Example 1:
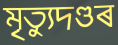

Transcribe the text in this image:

মৃত্যুদণ্ডৰ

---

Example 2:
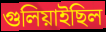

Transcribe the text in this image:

গুলিয়াইছিল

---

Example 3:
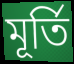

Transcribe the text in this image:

মূৰ্তি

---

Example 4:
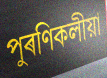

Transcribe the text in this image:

পুৰণিকলীয়া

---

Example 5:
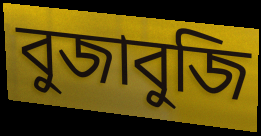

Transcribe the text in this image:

বুজাবুজি